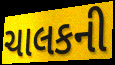
ચાલકની